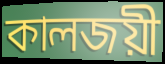
কালজয়ী